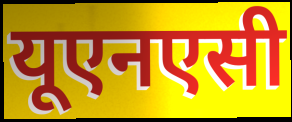
यूएनएसी